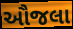
ઔજલા